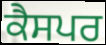
ਕੈਸਪਰ